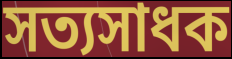
সত্যসাধক